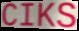
CIKS